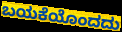
ಬಯಕೆಯೊಂದದು